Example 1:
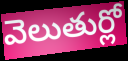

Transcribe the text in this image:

వెలుతుర్లో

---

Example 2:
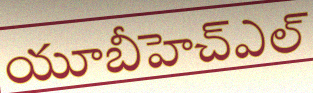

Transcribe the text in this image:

యూబీహెచ్ఎల్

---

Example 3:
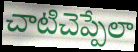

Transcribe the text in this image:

చాటిచెప్పేలా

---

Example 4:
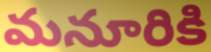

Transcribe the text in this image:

మనూరికి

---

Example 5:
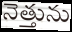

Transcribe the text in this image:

నెత్తును